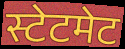
स्टेटमेट